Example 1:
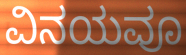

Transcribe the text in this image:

ವಿನಯವೂ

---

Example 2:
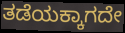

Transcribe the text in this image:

ತಡೆಯಕ್ಕಾಗದೇ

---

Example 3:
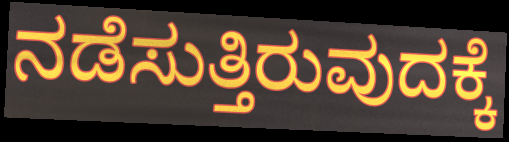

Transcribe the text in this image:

ನಡೆಸುತ್ತಿರುವುದಕ್ಕೆ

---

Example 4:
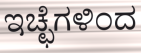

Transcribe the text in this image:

ಇಚ್ಛೆಗಳಿಂದ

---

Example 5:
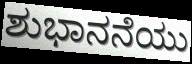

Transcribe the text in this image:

ಶುಭಾನನೆಯು